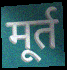
मूर्त